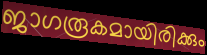
ജാഗരൂകമായിരിക്കും